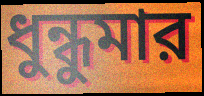
ধুন্ধুমার